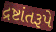
દ્રષ્ટાંતરૂપે